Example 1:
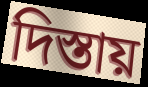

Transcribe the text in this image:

দিস্তায়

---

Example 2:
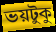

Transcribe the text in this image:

ভয়টুকু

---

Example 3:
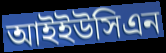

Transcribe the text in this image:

আইইউসিএন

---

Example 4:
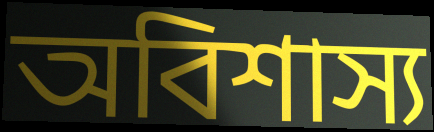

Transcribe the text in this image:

অবিশাস্য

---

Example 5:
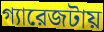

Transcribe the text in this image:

গ্যারেজটায়